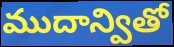
ముదాన్వితో